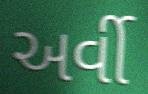
અર્વી